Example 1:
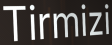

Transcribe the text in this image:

Tirmizi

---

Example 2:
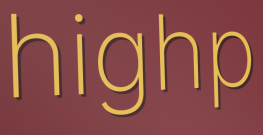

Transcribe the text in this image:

highp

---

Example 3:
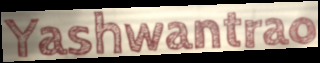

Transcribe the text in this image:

Yashwantrao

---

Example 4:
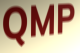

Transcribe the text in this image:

QMP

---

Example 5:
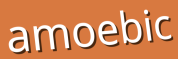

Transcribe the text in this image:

amoebic